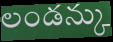
లండన్కు